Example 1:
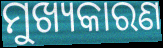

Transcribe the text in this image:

ମୁଖ୍ୟକାରଣ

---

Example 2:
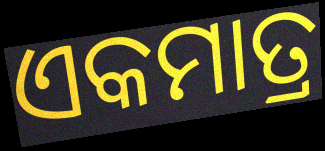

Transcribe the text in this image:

ଏକମାତ୍ର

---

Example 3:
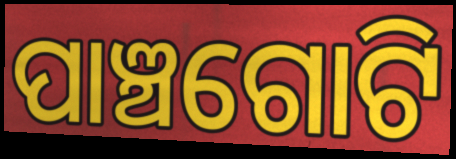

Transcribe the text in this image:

ପାଞ୍ଚଗୋଟି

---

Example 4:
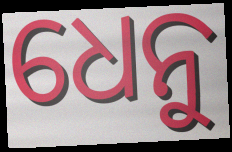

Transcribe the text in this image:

ଧେନୁ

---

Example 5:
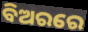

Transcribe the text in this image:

ବିଅରରେ